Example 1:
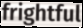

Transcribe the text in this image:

frightful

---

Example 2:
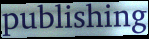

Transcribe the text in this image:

publishing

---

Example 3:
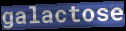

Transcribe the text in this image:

galactose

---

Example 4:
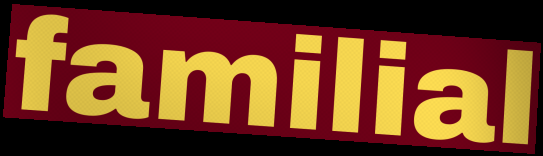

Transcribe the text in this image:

familial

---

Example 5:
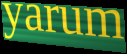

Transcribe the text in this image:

yarum